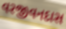
વરજીવનદાસ